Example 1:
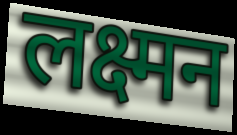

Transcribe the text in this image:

लक्ष्मन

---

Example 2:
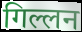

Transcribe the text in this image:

गिल्लन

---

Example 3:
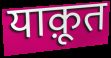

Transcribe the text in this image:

याक़ूत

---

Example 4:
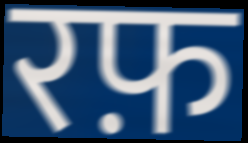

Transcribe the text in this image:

रफ़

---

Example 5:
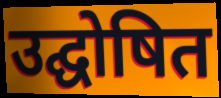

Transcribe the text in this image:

उद्घोषित